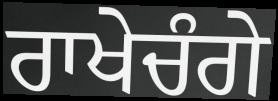
ਰਾਖੇਚੰਗੇ